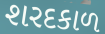
શરદકાળ